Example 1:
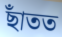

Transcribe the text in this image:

ছাঁতত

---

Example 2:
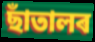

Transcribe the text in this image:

ছাঁতালৰ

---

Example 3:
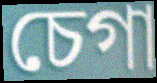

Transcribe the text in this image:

চেগা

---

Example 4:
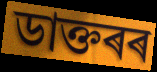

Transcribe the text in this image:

ডাক্তৰৰ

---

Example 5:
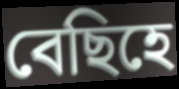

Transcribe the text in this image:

বেছিহে